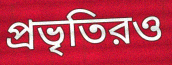
প্রভৃতিরও